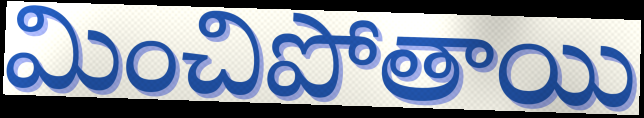
మించిపోతాయి